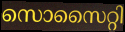
സൊസൈറ്റി